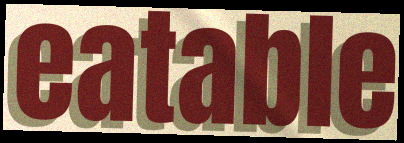
eatable